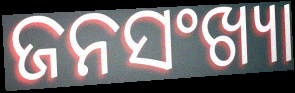
ଜନସଂଖ୍ଯା